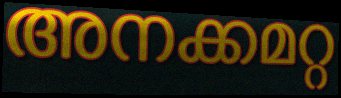
അനക്കമറ്റ